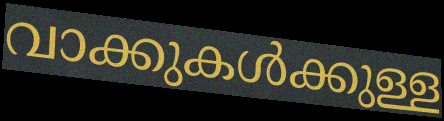
വാക്കുകൾക്കുള്ള